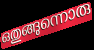
ഒതുങ്ങുന്നൊരു